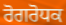
ਰੋਗਰੋਧਕ